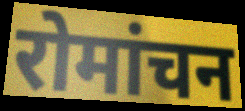
रोमांचन